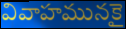
వివాహమునకై